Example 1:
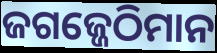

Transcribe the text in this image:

ଜଗଜ୍ଜେଠିମାନ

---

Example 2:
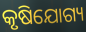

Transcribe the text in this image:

କୃଷିଯୋଗ୍ୟ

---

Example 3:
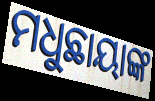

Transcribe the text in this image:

ମଧୁଛାୟାଙ୍କ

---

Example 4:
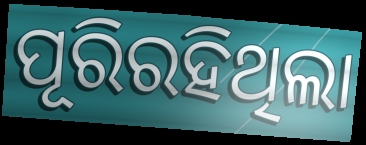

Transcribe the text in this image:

ପୂରିରହିଥିଲା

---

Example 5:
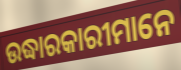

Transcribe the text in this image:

ଉଦ୍ଧାରକାରୀମାନେ